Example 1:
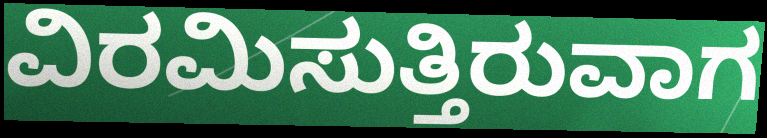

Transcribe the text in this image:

ವಿರಮಿಸುತ್ತಿರುವಾಗ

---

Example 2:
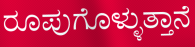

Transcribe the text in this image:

ರೂಪುಗೊಳ್ಳುತ್ತಾನೆ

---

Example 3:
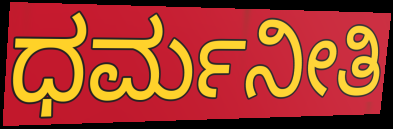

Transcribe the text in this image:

ಧರ್ಮನೀತಿ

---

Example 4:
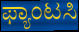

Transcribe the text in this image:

ಫ್ಯಾಂಟಸಿ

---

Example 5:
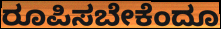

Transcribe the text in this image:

ರೂಪಿಸಬೇಕೆಂದೂ